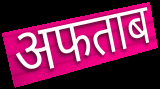
अफताब